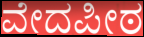
ವೇದಪೀಠ